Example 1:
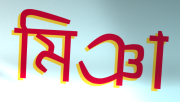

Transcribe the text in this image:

মিঞা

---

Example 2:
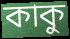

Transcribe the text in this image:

কাকু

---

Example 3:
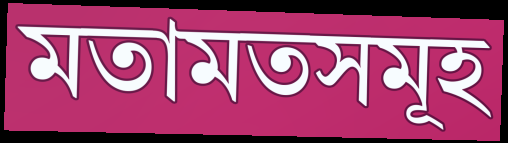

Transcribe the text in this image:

মতামতসমূহ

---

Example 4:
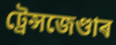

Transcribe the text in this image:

ট্ৰেন্সজেণ্ডাৰ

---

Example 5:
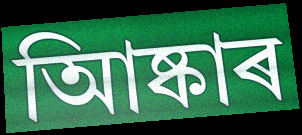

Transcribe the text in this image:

আিষ্কাৰ